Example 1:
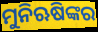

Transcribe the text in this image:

ମୁନିଋଷିଙ୍କର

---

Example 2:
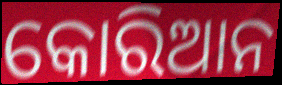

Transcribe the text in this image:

କୋରିଆନ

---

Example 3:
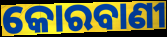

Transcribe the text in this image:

କୋରବାଣୀ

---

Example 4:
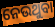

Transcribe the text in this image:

ନେଉଥୁବା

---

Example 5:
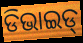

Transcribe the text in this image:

ଡିଭାଇଡ୍